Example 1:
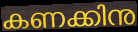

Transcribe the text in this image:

കണക്കിനു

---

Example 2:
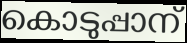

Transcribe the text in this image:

കൊടുപ്പാന്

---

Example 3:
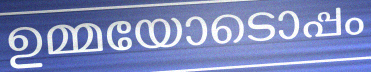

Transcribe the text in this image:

ഉമ്മയോടൊപ്പം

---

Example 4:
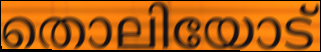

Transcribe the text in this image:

തൊലിയോട്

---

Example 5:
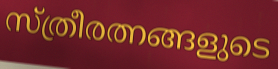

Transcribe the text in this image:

സ്ത്രീരത്നങ്ങളുടെ